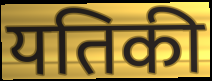
यतिकी